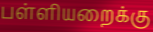
பள்ளியறைக்கு